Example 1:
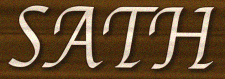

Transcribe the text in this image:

SATH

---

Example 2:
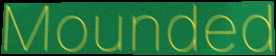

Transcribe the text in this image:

Mounded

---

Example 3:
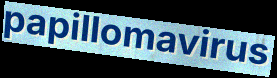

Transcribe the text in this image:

papillomavirus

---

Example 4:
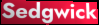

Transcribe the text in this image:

Sedgwick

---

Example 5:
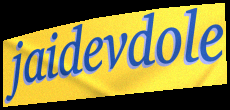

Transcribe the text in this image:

jaidevdole